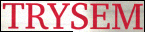
TRYSEM